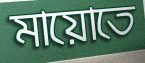
মায়োতে